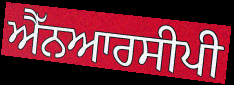
ਐੱਨਆਰਸੀਪੀ